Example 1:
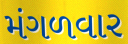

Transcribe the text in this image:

મંગળવાર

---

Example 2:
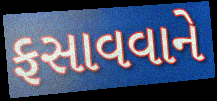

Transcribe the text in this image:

ફસાવવાને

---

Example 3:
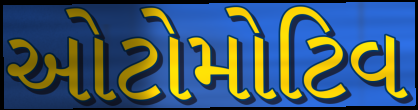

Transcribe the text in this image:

ઓટોમોટિવ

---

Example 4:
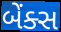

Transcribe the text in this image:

બેંક્સ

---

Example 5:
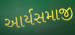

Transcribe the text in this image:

આર્યસમાજી